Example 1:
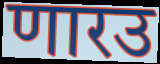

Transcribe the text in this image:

णारउ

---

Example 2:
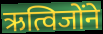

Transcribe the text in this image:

ऋत्विजोंने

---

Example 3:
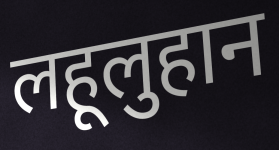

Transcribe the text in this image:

लहूलुहान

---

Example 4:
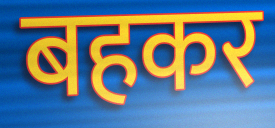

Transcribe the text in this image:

बहकर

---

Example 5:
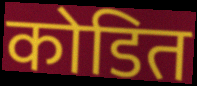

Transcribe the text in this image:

कोडित